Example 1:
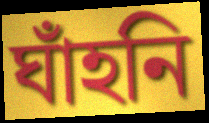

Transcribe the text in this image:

ঘাঁহনি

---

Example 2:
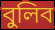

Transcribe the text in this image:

বুলিব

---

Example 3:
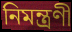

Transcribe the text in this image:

নিমন্ত্ৰণী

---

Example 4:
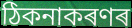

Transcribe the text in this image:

ঠিকনাকৰণৰ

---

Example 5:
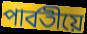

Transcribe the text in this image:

পাৰ্বতীয়ে